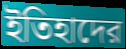
ইতিহাদের